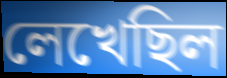
লেখেছিল